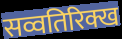
सव्वतिरिक्ख